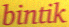
bintik